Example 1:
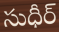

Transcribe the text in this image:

సుధీర్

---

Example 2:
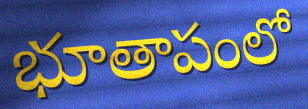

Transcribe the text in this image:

భూతాపంలో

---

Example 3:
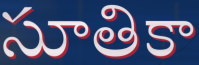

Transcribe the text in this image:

సూతికా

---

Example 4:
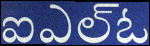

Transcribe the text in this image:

ఐఎల్ఓ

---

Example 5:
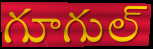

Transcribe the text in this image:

గూగుల్